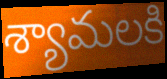
శ్యామలకి